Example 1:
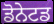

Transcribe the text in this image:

ਡੋਨੇਟਡ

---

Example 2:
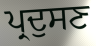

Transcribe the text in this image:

ਪ੍ਰਦੁਸਣ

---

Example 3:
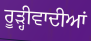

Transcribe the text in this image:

ਰੂੜ੍ਹੀਵਾਦੀਆਂ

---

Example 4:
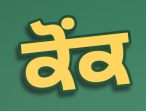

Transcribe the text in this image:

ਕੋਂਕ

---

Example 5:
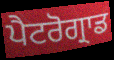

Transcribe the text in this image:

ਪੈਟਰੋਗ੍ਰਾਡ